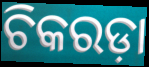
ଚିକରଡ଼ା